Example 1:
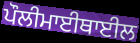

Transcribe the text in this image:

ਪੌਲੀਮਾਈਥਾਈਲ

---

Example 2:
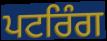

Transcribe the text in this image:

ਪਟਰਿੰਗ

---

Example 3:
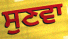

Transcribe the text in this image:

ਸੁਣਵਾ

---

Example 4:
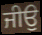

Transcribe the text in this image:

ਜੀਉ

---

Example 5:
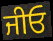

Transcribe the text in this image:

ਜੀਓ